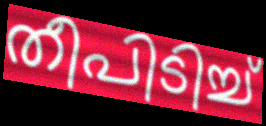
തീപിടിച്ച്